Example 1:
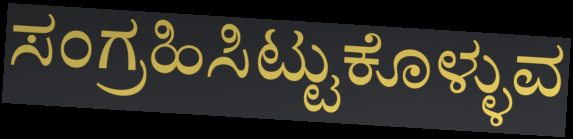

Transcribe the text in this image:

ಸಂಗ್ರಹಿಸಿಟ್ಟುಕೊಳ್ಳುವ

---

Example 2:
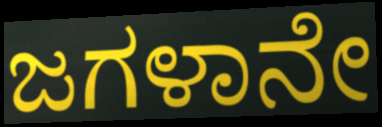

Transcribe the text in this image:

ಜಗಳಾನೇ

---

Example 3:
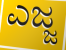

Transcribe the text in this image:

ಎಜ್ಜ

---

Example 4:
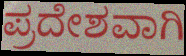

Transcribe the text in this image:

ಪ್ರದೇಶವಾಗಿ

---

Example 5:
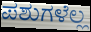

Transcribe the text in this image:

ಪಶುಗಳೆಲ್ಲ